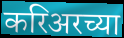
करिअरच्या